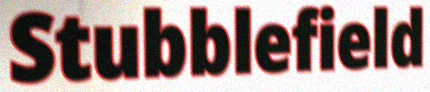
Stubblefield